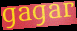
gagar